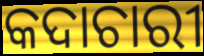
କଦାଚାରୀ